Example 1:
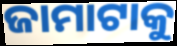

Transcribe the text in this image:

ଜାମାଟାକୁ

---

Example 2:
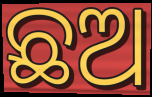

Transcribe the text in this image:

ଛଅ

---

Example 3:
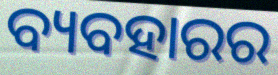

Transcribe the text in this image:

ବ୍ୟବହାରର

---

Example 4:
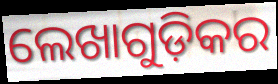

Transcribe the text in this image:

ଲେଖାଗୁଡ଼ିକର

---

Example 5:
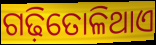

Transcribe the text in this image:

ଗଢ଼ିତୋଳିଥାଏ